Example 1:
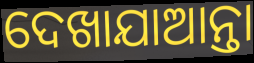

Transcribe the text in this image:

ଦେଖାଯାଆନ୍ତା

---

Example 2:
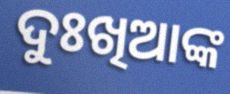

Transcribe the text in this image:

ଦୁଃଖିଆଙ୍କ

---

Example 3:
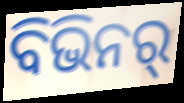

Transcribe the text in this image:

ବିଭିନର୍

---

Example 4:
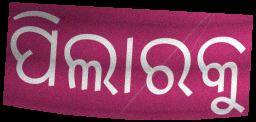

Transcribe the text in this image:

ପିଲାରକୁ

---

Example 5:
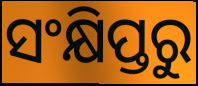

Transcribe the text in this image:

ସଂକ୍ଷିପ୍ତରୁ